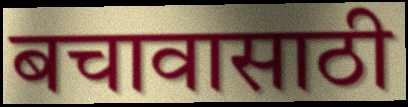
बचावासाठी